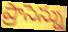
ప్రాసెస్ను